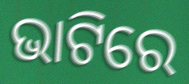
ଭାଟିରେ